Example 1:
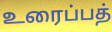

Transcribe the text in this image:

உரைப்பத்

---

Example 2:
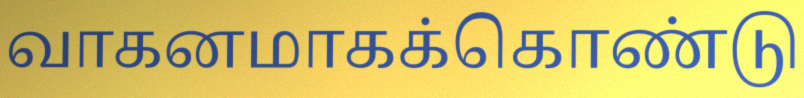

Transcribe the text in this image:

வாகனமாகக்கொண்டு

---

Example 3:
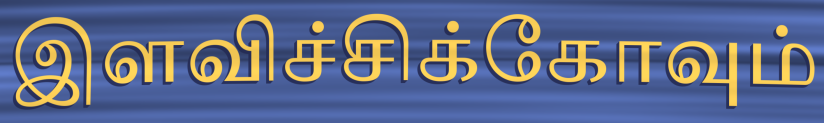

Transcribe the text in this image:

இளவிச்சிக்கோவும்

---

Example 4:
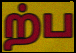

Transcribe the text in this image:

ற்ப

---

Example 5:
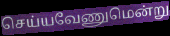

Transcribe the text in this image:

செய்யவேணுமென்று